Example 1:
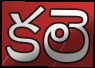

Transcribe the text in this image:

కలె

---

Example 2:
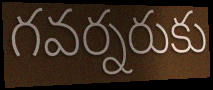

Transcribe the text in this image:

గవర్నరుకు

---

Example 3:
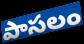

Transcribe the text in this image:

పాసలం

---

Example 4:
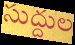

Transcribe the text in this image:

సుద్దుల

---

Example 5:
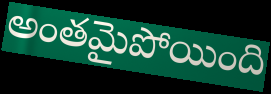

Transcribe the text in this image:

అంతమైపోయింది